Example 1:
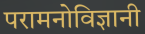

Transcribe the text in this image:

परामनोविज्ञानी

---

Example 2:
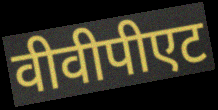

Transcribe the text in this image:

वीवीपीएट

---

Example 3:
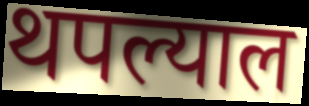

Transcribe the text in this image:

थपल्याल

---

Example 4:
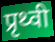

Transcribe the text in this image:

प्रृथ्वी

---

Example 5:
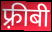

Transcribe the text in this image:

फ़्रीबी